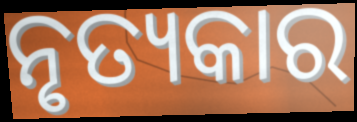
ନୃତ୍ୟକାର